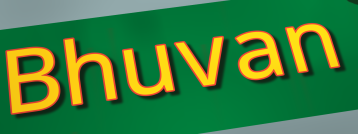
Bhuvan